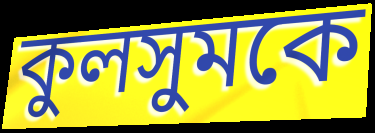
কুলসুমকে